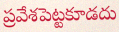
ప్రవేశపెట్టకూడదు